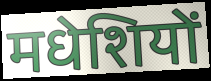
मधेशियों